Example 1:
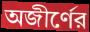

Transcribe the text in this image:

অজীর্ণের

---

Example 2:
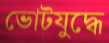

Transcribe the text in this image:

ভোটযুদ্ধে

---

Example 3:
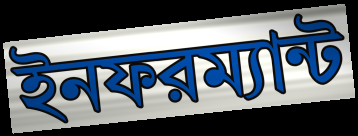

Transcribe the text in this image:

ইনফরম্যান্ট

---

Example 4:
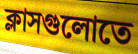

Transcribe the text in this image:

ক্লাসগুলোতে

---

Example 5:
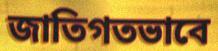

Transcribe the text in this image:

জাতিগতভাবে